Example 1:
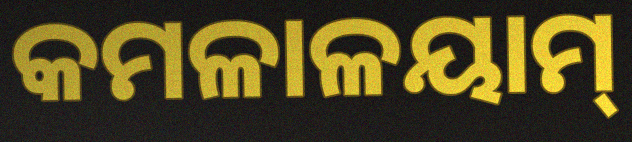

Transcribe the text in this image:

କମଳାଳୟାମ୍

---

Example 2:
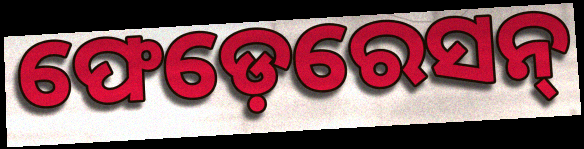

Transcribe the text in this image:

ଫେଡ଼େରେସନ୍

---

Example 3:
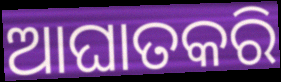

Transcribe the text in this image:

ଆଘାତକରି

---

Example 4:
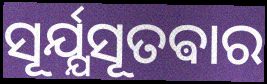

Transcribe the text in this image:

ସୂର୍ଯ୍ଯସୂତଵାର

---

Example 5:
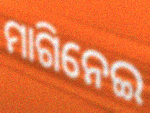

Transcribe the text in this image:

ମାଗିନେଇ